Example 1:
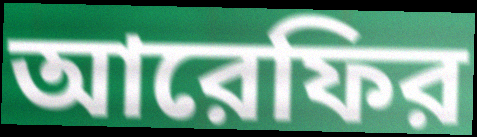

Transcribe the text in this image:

আরেফির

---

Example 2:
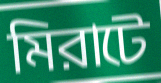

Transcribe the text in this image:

মিরাটে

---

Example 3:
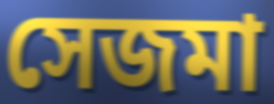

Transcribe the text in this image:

সেজমা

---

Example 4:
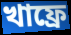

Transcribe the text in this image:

খাফ্রে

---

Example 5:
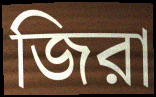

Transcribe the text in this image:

জিরা